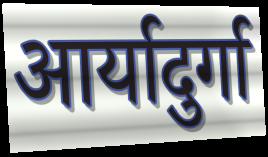
आर्यादुर्गा